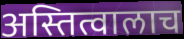
अस्तित्वालाच